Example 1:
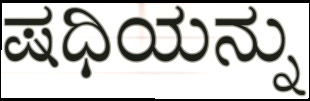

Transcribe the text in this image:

ಷಧಿಯನ್ನು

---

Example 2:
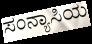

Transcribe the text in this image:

ಸಂನ್ಯಾಸಿಯ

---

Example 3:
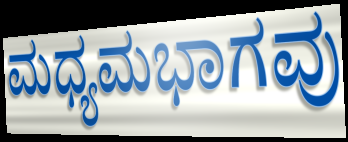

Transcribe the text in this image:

ಮಧ್ಯಮಭಾಗವು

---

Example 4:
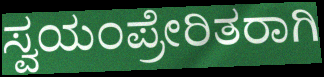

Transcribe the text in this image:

ಸ್ವಯಂಪ್ರೇರಿತರಾಗಿ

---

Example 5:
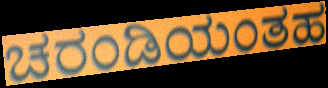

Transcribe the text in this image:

ಚರಂಡಿಯಂತಹ